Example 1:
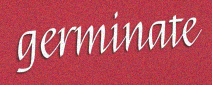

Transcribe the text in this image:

germinate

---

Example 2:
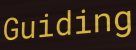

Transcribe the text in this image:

Guiding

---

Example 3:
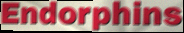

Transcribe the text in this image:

Endorphins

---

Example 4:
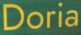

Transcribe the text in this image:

Doria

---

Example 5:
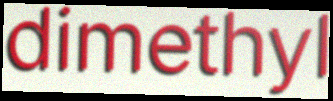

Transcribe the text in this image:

dimethyl